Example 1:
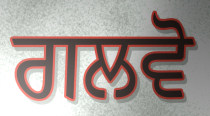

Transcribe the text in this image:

ਗਲਵੋ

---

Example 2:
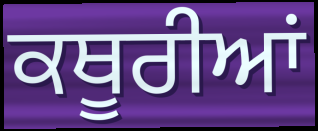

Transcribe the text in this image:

ਕਥੂਰੀਆਂ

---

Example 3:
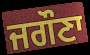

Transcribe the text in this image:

ਜਗੌਣਾ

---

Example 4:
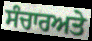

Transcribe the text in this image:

ਸੰਚਾਰਅਤੇ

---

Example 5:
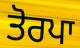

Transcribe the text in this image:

ਤੋਰਪਾ